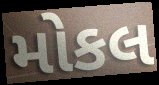
મોકલ